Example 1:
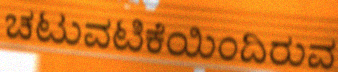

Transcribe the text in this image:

ಚಟುವಟಿಕೆಯಿಂದಿರುವ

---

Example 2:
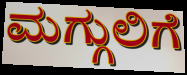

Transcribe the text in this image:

ಮಗ್ಗುಲಿಗೆ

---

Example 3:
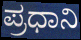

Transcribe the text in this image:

ಪ್ರಧಾನಿ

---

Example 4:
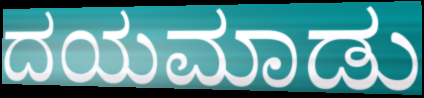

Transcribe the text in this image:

ದಯಮಾಡು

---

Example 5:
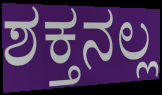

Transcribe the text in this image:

ಶಕ್ತನಲ್ಲ